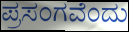
ಪ್ರಸಂಗವೆಂದು